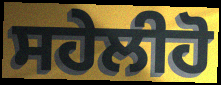
ਸਹੇਲੀਹੋ